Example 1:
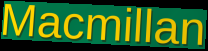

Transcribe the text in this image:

Macmillan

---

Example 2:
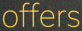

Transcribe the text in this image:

offers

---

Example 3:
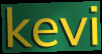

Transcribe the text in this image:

kevi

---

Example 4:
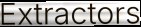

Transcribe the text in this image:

Extractors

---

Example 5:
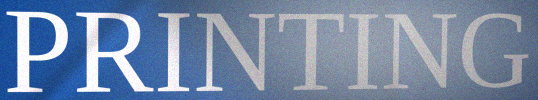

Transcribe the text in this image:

PRINTING